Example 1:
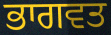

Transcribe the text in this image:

ਭਾਗਵਤ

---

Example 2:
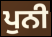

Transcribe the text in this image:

ਪੁਨੀ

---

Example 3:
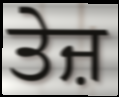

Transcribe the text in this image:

ਤੇਜ਼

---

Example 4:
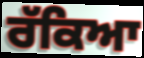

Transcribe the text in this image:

ਰੱਕਿਆ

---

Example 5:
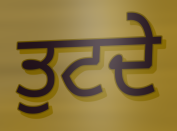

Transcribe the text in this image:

ਤੁਟਦੇ